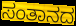
ಸಂತಾನದ